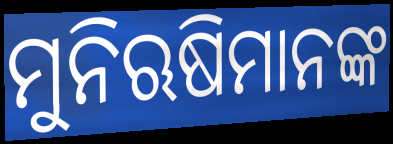
ମୁନିଋଷିମାନଙ୍କ